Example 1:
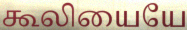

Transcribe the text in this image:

கூலியையே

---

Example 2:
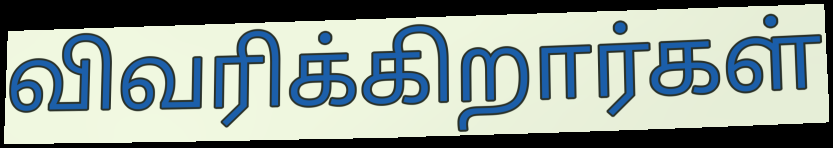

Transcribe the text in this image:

விவரிக்கிறார்கள்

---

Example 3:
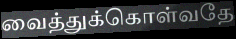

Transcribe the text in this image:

வைத்துக்கொள்வதே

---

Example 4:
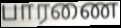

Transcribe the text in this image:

பாரணை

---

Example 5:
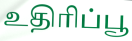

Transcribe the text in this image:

உதிரிப்பூ